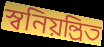
স্বনিয়ন্ত্রিত